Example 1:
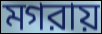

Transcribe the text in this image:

মগরায়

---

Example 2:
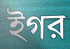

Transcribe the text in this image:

ইগর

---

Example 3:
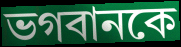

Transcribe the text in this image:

ভগবানকে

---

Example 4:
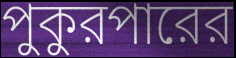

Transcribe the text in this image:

পুকুরপারের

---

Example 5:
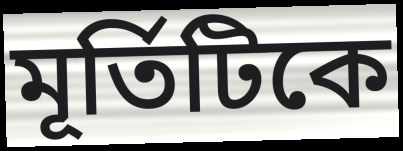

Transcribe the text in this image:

মূর্তিটিকে